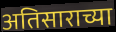
अतिसाराच्या